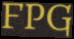
FPG